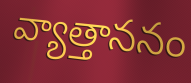
వ్యాత్తాననం